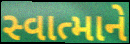
સ્વાત્માને